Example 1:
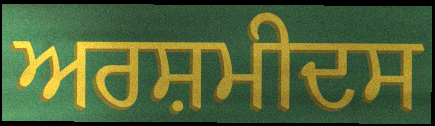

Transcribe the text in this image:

ਅਰਸ਼ਮੀਦਸ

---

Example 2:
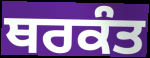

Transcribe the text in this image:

ਥਰਕੰਤ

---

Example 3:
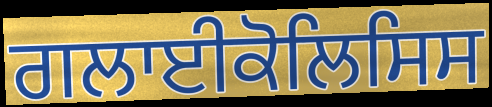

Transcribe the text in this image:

ਗਲਾਈਕੋਲਿਸਿਸ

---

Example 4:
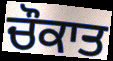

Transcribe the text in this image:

ਚੌਕਾਤ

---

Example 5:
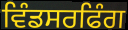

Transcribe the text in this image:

ਵਿੰਡਸਰਫਿੰਗ